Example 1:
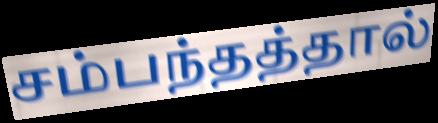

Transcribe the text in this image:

சம்பந்தத்தால்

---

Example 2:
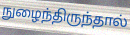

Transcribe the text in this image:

நுழைந்திருந்தால்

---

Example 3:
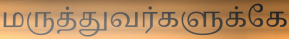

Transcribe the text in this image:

மருத்துவர்களுக்கே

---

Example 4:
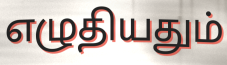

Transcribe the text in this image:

எழுதியதும்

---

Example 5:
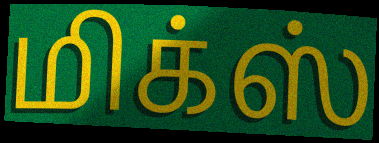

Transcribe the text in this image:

மிக்ஸ்